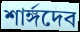
শার্ঙ্গদেব